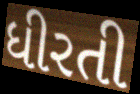
ધીરતી